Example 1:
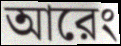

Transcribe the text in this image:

আরেং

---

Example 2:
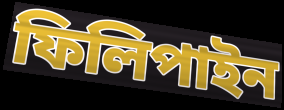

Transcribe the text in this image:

ফিলিপাইন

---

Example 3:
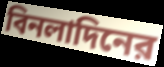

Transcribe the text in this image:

বিনলাদিনের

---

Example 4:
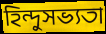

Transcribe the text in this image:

হিন্দুসভ্যতা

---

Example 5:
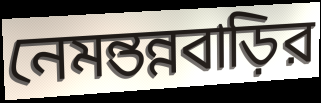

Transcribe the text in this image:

নেমন্তন্নবাড়ির